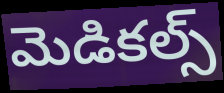
మెడికల్స్